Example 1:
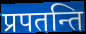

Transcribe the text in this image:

प्रपतन्ति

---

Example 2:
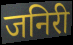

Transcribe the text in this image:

जनिरी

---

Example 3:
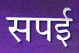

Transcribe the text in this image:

सपई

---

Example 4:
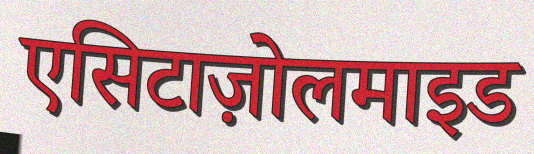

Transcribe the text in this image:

एसिटाज़ोलमाइड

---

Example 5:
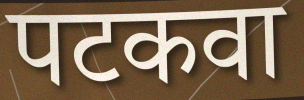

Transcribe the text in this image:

पटकवा